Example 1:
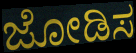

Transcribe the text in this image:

ಜೋಡಿಸ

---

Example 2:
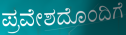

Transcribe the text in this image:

ಪ್ರವೇಶದೊಂದಿಗೆ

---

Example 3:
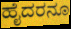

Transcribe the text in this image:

ಹೈದರನೂ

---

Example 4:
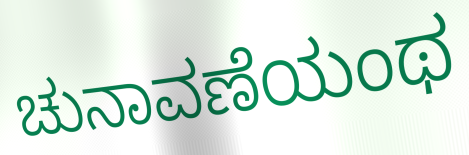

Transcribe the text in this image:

ಚುನಾವಣೆಯಂಥ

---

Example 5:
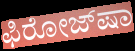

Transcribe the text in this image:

ಫಿರೋಜ್‌ಷಾ